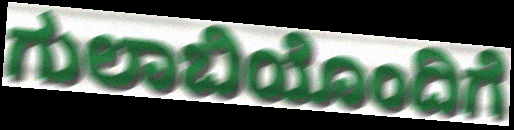
ಗುಲಾಬಿಯೊಂದಿಗೆ